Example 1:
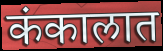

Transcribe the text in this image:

कंकालात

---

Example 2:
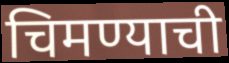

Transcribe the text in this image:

चिमण्याची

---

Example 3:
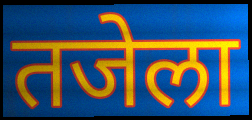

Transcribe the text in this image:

तजेला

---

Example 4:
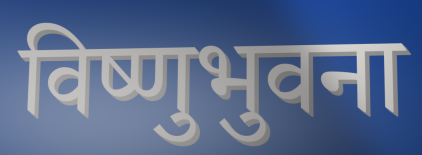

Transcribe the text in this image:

विष्णुभुवना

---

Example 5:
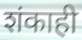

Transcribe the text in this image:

शंकाही